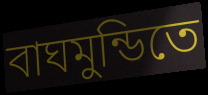
বাঘমুন্ডিতে